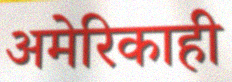
अमेरिकाही